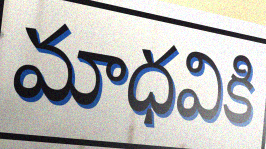
మాధవికి